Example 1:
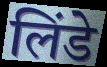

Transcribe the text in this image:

लिंडे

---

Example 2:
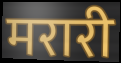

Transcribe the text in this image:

मरारी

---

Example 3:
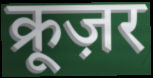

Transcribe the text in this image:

क्रूज़र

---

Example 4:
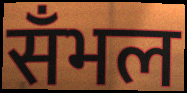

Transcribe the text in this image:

सँभल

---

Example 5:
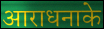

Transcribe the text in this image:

आराधनाके